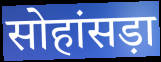
सोहांसड़ा